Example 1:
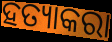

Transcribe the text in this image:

ହତ୍ୟାକରା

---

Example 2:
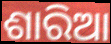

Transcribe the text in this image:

ଶାରିଆ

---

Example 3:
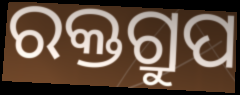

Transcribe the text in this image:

ରକ୍ତଗ୍ରୁପ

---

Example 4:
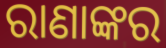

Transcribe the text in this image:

ରାଣାଙ୍କର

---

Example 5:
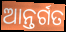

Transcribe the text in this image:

ଆନ୍ତର୍ଗତ